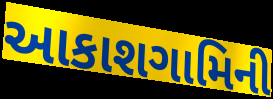
આકાશગામિની